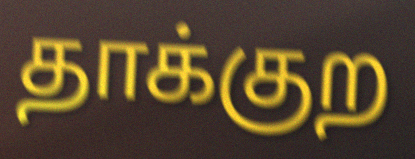
தாக்குற